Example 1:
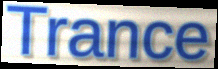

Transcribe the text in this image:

Trance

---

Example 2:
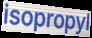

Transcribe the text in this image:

isopropyl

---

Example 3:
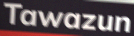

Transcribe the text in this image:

Tawazun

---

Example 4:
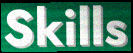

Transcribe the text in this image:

Skills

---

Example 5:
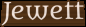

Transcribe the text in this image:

Jewett